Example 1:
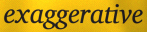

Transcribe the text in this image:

exaggerative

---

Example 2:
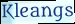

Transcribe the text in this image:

Kleangs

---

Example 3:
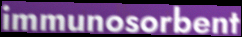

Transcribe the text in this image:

immunosorbent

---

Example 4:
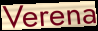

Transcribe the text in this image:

Verena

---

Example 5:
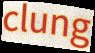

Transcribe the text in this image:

clung